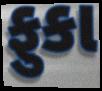
ફુકા